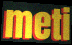
meti